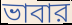
ভাবার